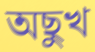
অছুখ